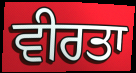
ਵੀਰਤਾ